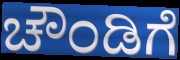
ಚೌಂಡಿಗೆ